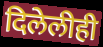
दिलेलीही